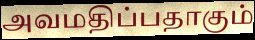
அவமதிப்பதாகும்